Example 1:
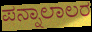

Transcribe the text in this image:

ಪನ್ನಾಲಾಲರ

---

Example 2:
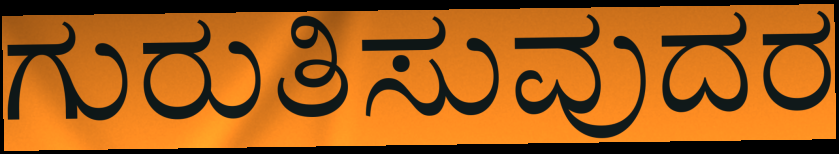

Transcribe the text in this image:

ಗುರುತಿಸುವುದರ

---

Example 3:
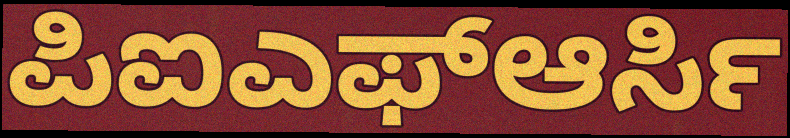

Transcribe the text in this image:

ಪಿಐಎಫ್ಆರ್ಸಿ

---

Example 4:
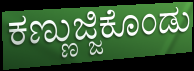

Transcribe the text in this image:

ಕಣ್ಣುಜ್ಜಿಕೊಂಡು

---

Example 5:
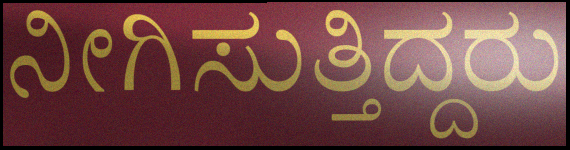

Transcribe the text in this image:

ನೀಗಿಸುತ್ತಿದ್ದರು